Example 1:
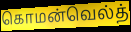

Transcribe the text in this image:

கொமன்வெல்த்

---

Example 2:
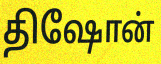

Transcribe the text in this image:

திஷோன்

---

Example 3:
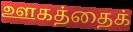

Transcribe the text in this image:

ஊகத்தைக்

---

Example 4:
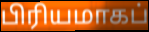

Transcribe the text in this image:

பிரியமாகப்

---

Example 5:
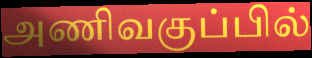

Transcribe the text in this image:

அணிவகுப்பில்